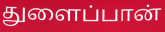
துளைப்பான்